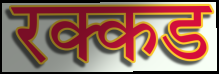
रक्कड